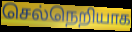
செல்நெறியாக